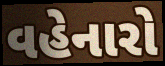
વહેનારો